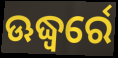
ଊଦ୍ଧ୍ୱର୍ରେ